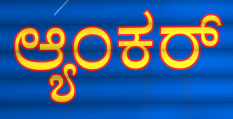
ಆ್ಯಂಕರ್